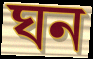
ঘন